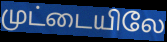
முட்டையிலே